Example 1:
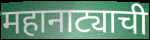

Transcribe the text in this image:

महानाट्याची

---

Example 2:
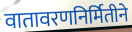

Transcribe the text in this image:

वातावरणनिर्मितीने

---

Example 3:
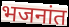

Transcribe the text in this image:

भजनांत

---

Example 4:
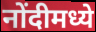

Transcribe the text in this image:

नोंदीमध्ये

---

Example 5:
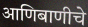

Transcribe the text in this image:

आणिबाणीचे